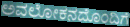
ಅವಲೋಕನದೊಂದಿಗೆ